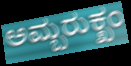
ಅಮ್ಬರುಕ್ಖಂ